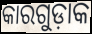
କାରଗୁଡ଼ାକ